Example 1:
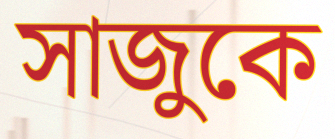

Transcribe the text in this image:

সাজুকে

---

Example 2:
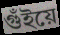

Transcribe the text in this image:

গুঁইয়ে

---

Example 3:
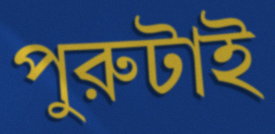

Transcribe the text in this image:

পুরুটাই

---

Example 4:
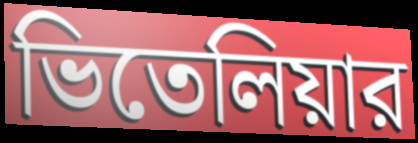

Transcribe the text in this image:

ভিতেলিয়ার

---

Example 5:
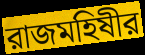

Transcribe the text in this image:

রাজমহিষীর